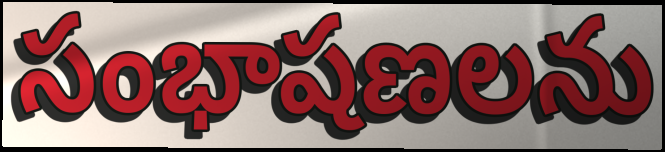
సంభాషణలను